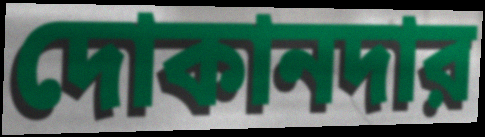
দোকানদার